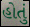
હોતું